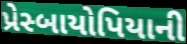
પ્રેસ્બાયોપિયાની